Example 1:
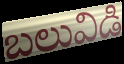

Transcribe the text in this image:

బలువిడి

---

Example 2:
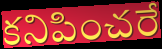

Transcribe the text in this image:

కనిపించరే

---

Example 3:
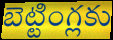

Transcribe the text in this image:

బెట్టింగ్లకు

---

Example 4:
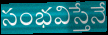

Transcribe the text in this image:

సంభవిస్తేనే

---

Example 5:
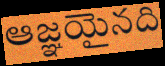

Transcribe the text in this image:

ఆజ్ఞయైనది